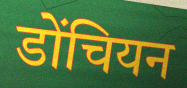
डोंचियन